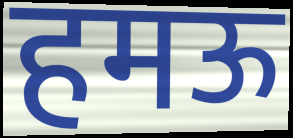
हमऊ